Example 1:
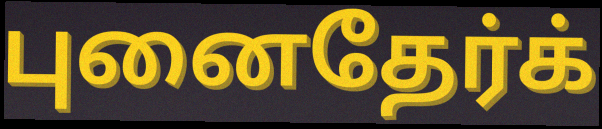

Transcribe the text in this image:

புனைதேர்க்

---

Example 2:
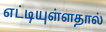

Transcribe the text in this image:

எட்டியுள்ளதால்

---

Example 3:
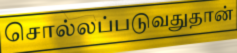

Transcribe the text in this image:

சொல்லப்படுவதுதான்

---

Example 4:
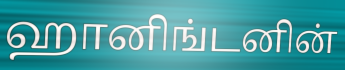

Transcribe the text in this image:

ஹானிங்டனின்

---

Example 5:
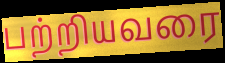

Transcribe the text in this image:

பற்றியவரை